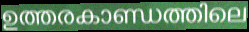
ഉത്തരകാണ്ഡത്തിലെ